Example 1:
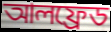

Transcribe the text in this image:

আলফ্রেড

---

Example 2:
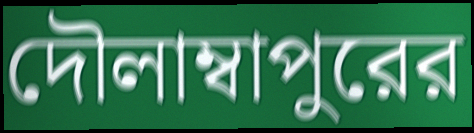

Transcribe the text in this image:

দৌলাম্বাপুরের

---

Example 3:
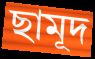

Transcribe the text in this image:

ছামূদ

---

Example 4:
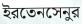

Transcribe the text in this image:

ইরতেনসেনুর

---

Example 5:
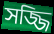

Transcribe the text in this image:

সজ্জি